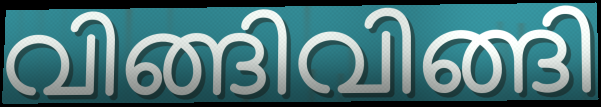
വിങ്ങിവിങ്ങി